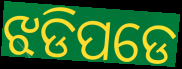
ଝଡିପଡେ